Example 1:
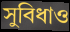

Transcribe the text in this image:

সুবিধাও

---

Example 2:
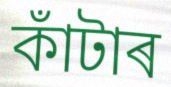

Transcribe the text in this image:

কাঁটাৰ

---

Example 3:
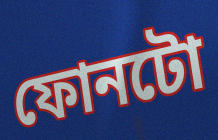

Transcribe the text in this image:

ফোনটো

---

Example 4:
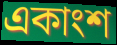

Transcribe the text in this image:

একাংশ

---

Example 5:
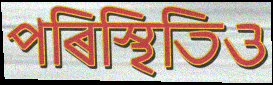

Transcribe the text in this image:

পৰিস্থিতিও